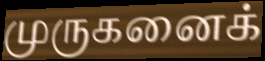
முருகனைக்